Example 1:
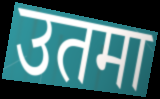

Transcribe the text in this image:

उतमा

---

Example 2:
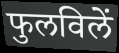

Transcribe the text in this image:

फुलविलें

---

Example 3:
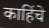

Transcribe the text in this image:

काहिंचे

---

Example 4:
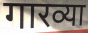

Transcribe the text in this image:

गारव्या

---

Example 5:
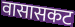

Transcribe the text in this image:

वासासकट